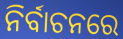
ନିର୍ବାଚନରେ